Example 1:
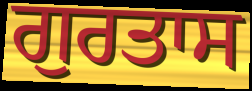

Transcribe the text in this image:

ਗੁਰਤਾਸ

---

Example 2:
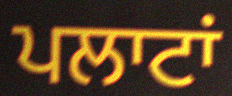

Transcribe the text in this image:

ਪਲਾਟਾਂ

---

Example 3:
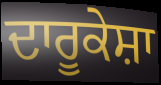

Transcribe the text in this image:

ਦਾਰੂਕੇਸ਼ਾ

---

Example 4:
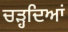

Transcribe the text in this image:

ਚੜ੍ਹਦਿਆਂ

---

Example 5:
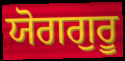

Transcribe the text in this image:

ਯੋਗਗੁਰੂ